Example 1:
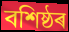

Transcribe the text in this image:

বশিষ্ঠৰ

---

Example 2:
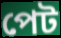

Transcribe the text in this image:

পেট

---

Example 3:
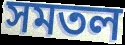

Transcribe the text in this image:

সমতল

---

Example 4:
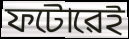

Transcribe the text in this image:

ফটোৱেই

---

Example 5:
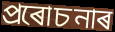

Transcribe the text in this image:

প্ৰৰোচনাৰ